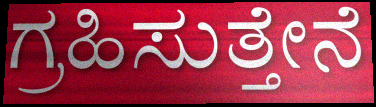
ಗ್ರಹಿಸುತ್ತೇನೆ